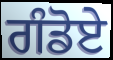
ਗੰਡੋਏ